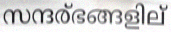
സന്ദര്ഭങ്ങളില്